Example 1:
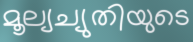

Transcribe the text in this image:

മൂല്യച്യുതിയുടെ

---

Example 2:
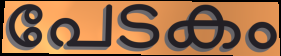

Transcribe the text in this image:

പേടകം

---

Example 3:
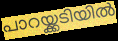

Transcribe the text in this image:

പാറയ്ക്കടിയിൽ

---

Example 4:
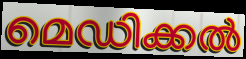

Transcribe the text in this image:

മെഡിക്കൽ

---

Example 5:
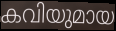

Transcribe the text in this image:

കവിയുമായ